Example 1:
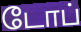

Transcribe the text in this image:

டோப்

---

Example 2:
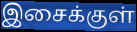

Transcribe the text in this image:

இசைக்குள்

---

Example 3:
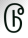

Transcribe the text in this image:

டூ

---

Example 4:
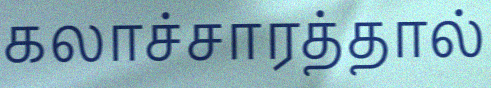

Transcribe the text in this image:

கலாச்சாரத்தால்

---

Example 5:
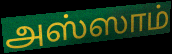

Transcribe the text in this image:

அஸ்ஸாம்